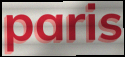
paris